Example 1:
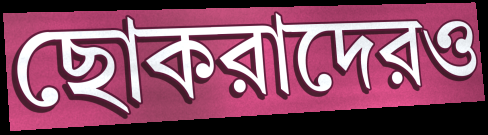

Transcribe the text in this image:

ছোকরাদেরও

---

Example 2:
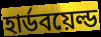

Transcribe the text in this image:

হার্ডবয়েল্ড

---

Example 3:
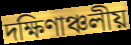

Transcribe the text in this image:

দক্ষিণাঞ্চলীয়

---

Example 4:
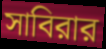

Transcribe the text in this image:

সাবিরার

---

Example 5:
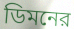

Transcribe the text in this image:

ডিমনের